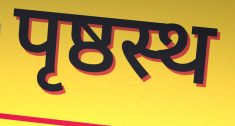
पृष्ठस्थ